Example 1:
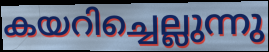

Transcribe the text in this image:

കയറിച്ചെല്ലുന്നു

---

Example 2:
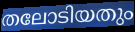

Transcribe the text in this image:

തലോടിയതും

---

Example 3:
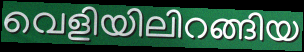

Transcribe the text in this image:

വെളിയിലിറങ്ങിയ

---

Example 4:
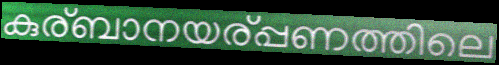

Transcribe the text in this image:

കുര്ബാനയര്പ്പണത്തിലെ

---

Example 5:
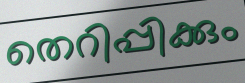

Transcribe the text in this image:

തെറിപ്പിക്കും